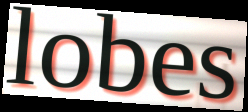
lobes